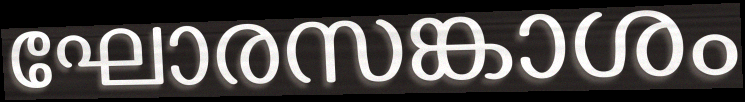
ഘോരസങ്കാശം